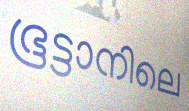
ഭൂട്ടാനിലെ